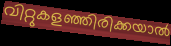
വിറ്റുകളഞ്ഞിരിക്കയാൽ